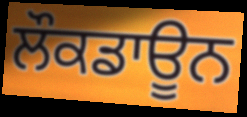
ਲੌਕਡਾਊਨ